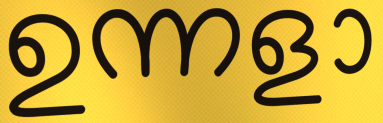
ഉന്നളാ